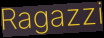
Ragazzi